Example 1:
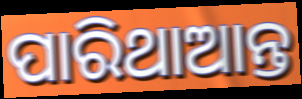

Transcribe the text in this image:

ପାରିଥାଆନ୍ତ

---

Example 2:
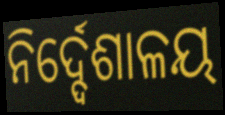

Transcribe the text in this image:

ନିର୍ଦ୍ଦେଶାଳୟ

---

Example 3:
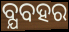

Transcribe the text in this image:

ବ୍ଯବହର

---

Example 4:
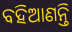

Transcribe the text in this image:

ବହିଆଣନ୍ତି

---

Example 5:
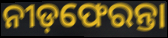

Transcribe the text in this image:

ନୀଡ଼ଫେରନ୍ତା